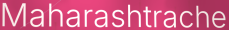
Maharashtrache